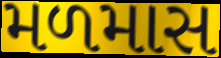
મળમાસ